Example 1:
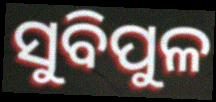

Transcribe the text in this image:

ସୁବିପୁଳ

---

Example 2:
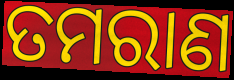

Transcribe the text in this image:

ତମରାଣ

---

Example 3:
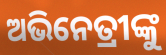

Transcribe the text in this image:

ଅଭିନେତ୍ରୀଙ୍କୁ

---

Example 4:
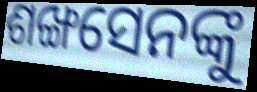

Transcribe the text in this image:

ଶଙ୍ଖସେନଙ୍କୁ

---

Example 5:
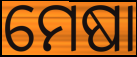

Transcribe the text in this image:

ମେଷା